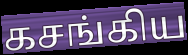
கசங்கிய